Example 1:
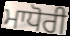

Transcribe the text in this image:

ਮਾਧੋਰੀ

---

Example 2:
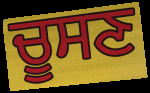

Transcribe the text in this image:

ਚੂਸਣ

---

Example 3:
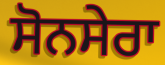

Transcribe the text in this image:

ਸੋਨਸੇਰਾ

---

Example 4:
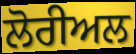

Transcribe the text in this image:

ਲੋਰੀਅਲ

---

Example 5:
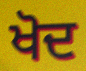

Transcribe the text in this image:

ਖੋਦ